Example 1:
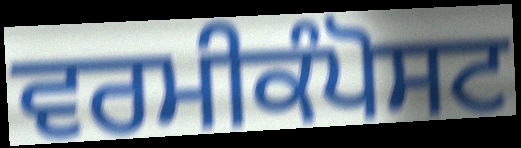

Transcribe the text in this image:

ਵਰਮੀਕੰਪੋਸਟ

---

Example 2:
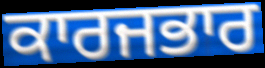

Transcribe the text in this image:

ਕਾਰਜਭਾਰ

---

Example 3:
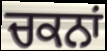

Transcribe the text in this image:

ਚਕਨਾਂ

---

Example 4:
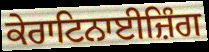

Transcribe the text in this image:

ਕੇਰਾਟਿਨਾਈਜ਼ਿੰਗ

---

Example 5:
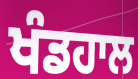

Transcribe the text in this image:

ਖੰਡਹਾਲ